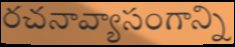
రచనావ్యాసంగాన్ని